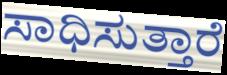
ಸಾಧಿಸುತ್ತಾರೆ